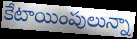
కేటాయింపులున్నా